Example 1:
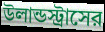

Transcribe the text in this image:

উলান্ডস্ট্রাসের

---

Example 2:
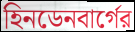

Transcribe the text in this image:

হিনডেনবার্গের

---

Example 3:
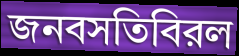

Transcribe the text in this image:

জনবসতিবিরল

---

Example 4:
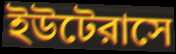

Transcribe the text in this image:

ইউটেরাসে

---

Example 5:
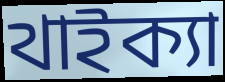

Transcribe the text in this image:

থাইক্যা